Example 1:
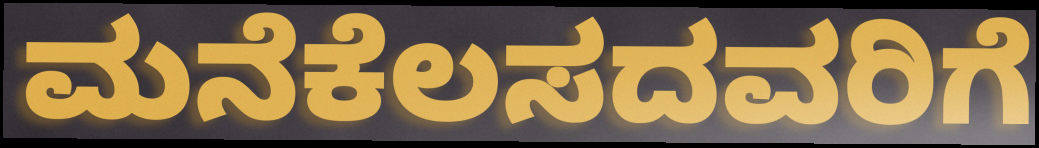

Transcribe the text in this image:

ಮನೆಕೆಲಸದವರಿಗೆ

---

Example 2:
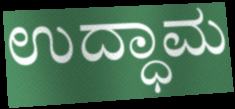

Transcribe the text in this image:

ಉದ್ಧಾಮ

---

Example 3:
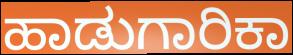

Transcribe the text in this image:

ಹಾಡುಗಾರಿಕಾ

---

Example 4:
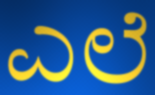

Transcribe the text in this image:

ಎಲೆ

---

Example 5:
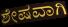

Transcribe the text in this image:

ಶೇಷವಾಗಿ